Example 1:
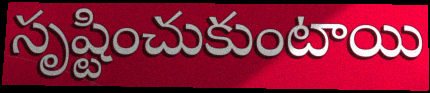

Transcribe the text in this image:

సృష్టించుకుంటాయి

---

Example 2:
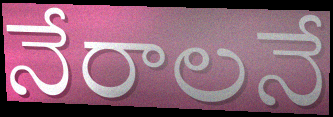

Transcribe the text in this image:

నేరాలనే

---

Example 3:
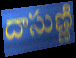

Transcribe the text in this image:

దాసుణ్ణి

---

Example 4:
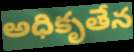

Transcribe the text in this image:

అధికృతేన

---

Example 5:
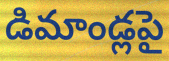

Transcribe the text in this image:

డిమాండ్లపై